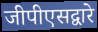
जीपीएसद्वारे